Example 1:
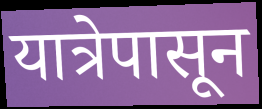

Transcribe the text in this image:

यात्रेपासून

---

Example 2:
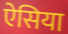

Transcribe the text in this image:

ऐसिया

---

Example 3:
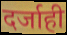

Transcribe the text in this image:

दर्जाही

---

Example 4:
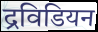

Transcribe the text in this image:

द्रविडियन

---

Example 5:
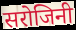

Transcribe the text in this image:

सरोजिनी